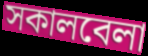
সকালবেলা